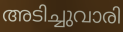
അടിച്ചുവാരി